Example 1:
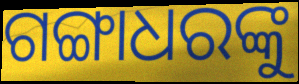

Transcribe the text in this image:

ଗଙ୍ଗାଧରଙ୍କୁ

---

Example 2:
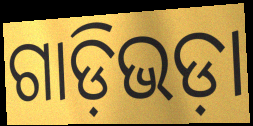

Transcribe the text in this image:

ଗାଡ଼ିଭଡ଼ା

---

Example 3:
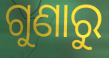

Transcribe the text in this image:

ଗୁଣାରୁ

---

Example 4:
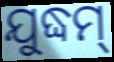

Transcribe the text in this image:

ଯୁଦ୍ଧମ୍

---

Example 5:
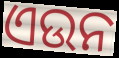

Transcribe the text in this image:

ଏଉନ